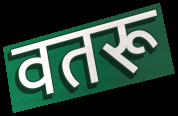
वतरू